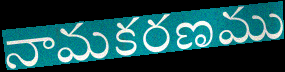
నామకరణము